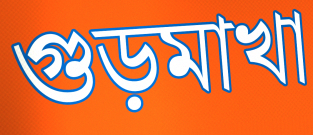
গুড়মাখা